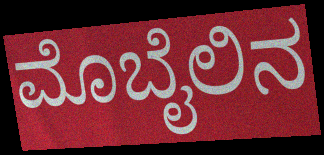
ಮೊಬೈಲಿನ